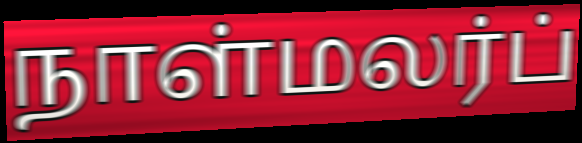
நாள்மலர்ப்